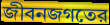
জীবনজগতের